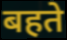
बहते